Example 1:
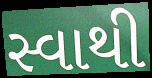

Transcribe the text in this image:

સ્વાથી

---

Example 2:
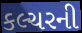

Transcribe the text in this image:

કલ્ચરની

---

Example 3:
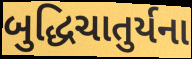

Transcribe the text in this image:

બુદ્ધિચાતુર્યના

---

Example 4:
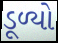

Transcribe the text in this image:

ડૂળ્યો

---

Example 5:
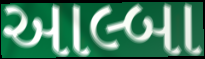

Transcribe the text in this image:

આલ્બા